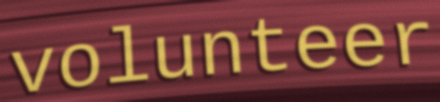
volunteer